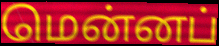
மென்னப்